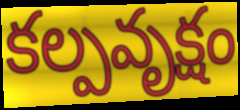
కల్పవృక్షం